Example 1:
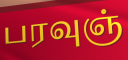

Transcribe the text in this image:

பரவுஞ்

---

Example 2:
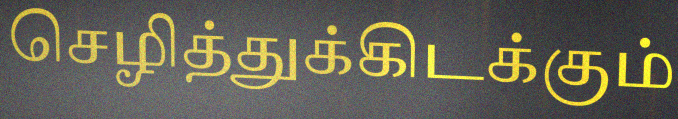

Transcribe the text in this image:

செழித்துக்கிடக்கும்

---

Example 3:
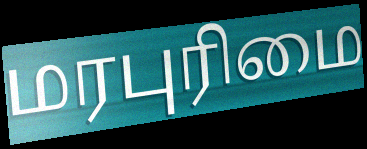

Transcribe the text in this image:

மரபுரிமை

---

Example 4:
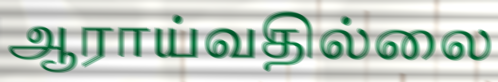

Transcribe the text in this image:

ஆராய்வதில்லை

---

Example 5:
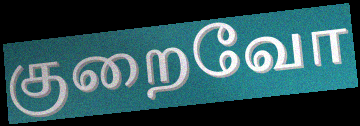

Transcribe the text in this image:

குறைவோ